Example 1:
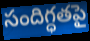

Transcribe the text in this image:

సందిగ్ధతపై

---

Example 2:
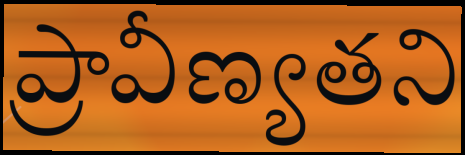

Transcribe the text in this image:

ప్రావీణ్యతని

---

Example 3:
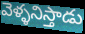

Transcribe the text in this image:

వెళ్ళనిస్తాడు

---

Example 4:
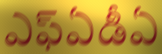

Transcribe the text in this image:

ఎఫ్ఏడీఏ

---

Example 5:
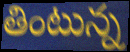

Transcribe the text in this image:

తింటున్న